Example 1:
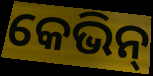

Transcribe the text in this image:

କେଭିନ୍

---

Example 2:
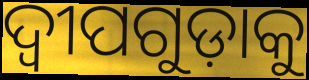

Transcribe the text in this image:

ଦ୍ୱୀପଗୁଡ଼ାକୁ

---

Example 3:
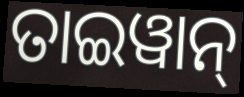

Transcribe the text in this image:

ତାଇୱାନ୍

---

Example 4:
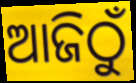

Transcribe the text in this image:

ଆଜିଠୁଁ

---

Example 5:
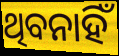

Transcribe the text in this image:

ଥିବନାହିଁ